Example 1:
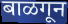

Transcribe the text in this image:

बाळगून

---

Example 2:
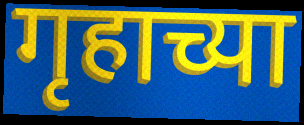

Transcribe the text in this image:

गृहाच्या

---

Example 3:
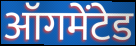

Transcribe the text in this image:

ऑगमेंटेड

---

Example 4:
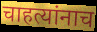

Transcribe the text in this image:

चाहत्यांनाच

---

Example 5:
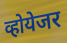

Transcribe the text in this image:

व्होयेजर